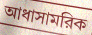
আধাসামরিক